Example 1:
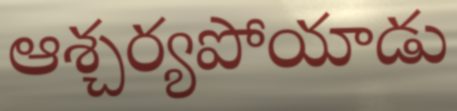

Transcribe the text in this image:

ఆశ్చర్యపోయాడు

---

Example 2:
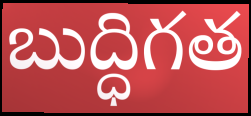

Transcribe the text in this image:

బుద్ధిగత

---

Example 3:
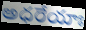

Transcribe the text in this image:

అధరేయాః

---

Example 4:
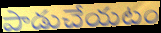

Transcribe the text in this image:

పాడుచేయటం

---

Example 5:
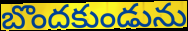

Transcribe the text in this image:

బొందకుండును